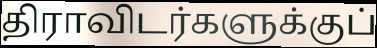
திராவிடர்களுக்குப்